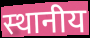
स्थानीय